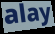
alay